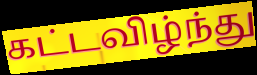
கட்டவிழ்ந்து